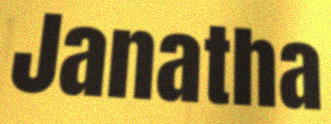
Janatha